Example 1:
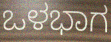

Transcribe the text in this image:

ಒಳಭಾಗ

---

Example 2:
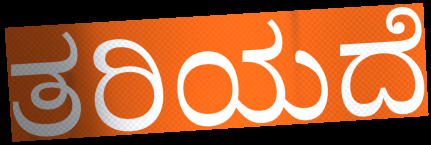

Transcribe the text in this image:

ತರಿಯದೆ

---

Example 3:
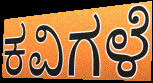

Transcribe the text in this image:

ಕವಿಗಳೆ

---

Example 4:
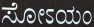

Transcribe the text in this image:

ಸೋಽಯಂ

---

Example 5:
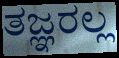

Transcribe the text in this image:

ತಜ್ಞರಲ್ಲ